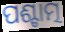
ପଶ୍ଚାତ୍ମ